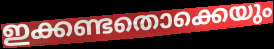
ഇക്കണ്ടതൊക്കെയും